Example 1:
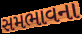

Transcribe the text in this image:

સમભાવના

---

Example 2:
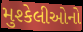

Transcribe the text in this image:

મુશ્કેલીઓનો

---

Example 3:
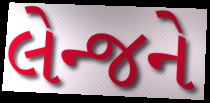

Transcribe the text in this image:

લેન્જને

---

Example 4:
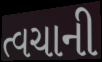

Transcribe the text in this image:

ત્વચાની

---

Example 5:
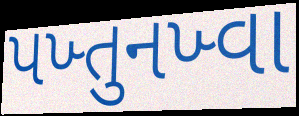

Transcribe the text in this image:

પખ્તુનખ્વા